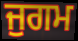
ਜੁਗਮ